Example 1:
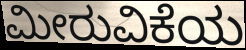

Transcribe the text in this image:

ಮೀರುವಿಕೆಯ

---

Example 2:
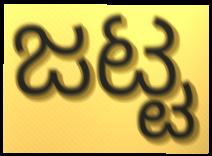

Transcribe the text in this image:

ಜಟ್ಟ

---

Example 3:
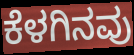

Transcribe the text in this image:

ಕೆಳಗಿನವು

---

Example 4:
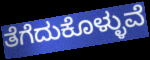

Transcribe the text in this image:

ತೆಗೆದುಕೊಳ್ಳುವೆ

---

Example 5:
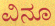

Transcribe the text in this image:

ವಿನೂ